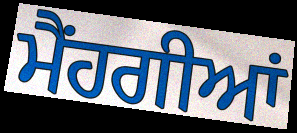
ਮੈਂਹਗੀਆਂ